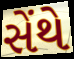
સેંથે